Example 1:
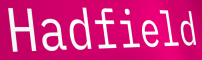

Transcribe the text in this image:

Hadfield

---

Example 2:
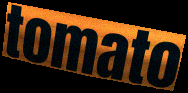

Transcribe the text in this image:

tomato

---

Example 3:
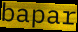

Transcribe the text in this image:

bapar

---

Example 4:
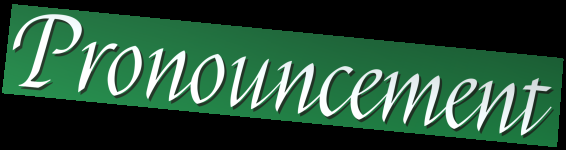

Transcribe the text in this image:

Pronouncement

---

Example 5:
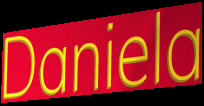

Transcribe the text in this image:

Daniela